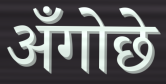
अँगोछे